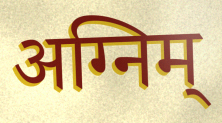
अग्निम्